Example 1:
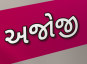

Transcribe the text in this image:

અજોજી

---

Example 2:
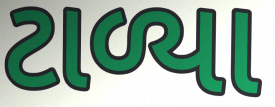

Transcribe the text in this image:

ટાળ્યા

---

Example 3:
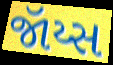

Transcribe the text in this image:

જૉય્સ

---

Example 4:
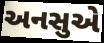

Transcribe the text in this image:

અનસુએ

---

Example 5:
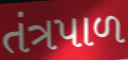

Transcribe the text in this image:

તંત્રપાળ